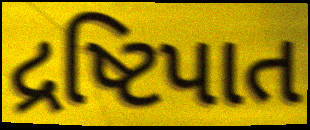
દ્રષ્ટિપાત